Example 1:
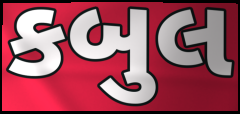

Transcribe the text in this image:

કબુલ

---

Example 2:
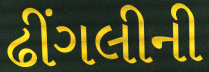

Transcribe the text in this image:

ઢીંગલીની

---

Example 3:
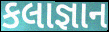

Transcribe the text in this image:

કલાજ્ઞાન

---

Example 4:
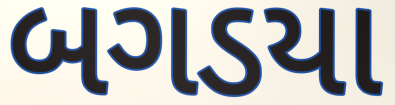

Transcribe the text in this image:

બગડયા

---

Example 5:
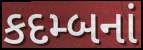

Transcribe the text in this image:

કદમ્બનાં